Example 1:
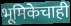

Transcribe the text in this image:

भूमिकेचाही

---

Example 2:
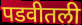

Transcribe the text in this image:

पडवीतली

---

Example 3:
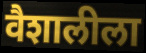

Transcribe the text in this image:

वैशालीला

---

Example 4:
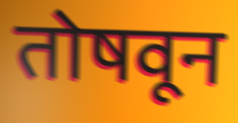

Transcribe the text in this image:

तोषवून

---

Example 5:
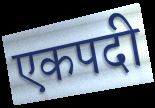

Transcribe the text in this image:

एकपदी